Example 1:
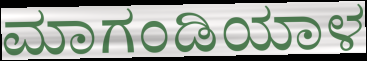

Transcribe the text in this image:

ಮಾಗಂಡಿಯಾಳ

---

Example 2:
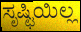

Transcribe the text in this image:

ಸೃಷ್ಟಿಯಿಲ್ಲ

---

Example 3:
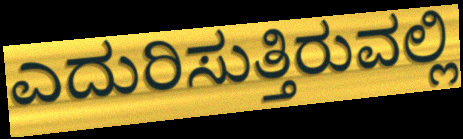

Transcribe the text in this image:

ಎದುರಿಸುತ್ತಿರುವಲ್ಲಿ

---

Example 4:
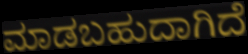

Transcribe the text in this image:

ಮಾಡಬಹುದಾಗಿದೆ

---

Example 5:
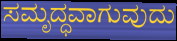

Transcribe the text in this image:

ಸಮೃದ್ಧವಾಗುವುದು